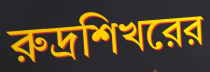
রুদ্রশিখরের